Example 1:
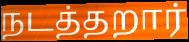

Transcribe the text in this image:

நடத்தறார்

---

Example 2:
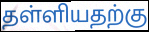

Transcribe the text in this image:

தள்ளியதற்கு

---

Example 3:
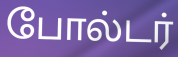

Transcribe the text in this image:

போல்டர்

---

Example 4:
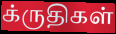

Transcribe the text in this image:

க்ருதிகள்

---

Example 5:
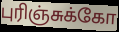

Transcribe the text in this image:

புரிஞ்சுக்கோ